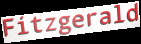
Fitzgerald